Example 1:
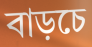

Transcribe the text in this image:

বাড়চে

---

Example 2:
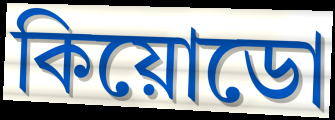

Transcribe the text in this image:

কিয়োডো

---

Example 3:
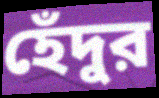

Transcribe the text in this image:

হেঁদুর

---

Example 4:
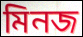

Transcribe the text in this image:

মিনজ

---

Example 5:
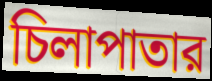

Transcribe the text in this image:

চিলাপাতার